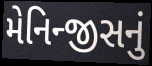
મેનિન્જીસનું